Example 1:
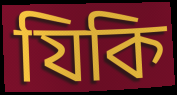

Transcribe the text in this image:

যিকি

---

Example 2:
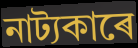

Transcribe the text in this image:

নাট্যকাৰে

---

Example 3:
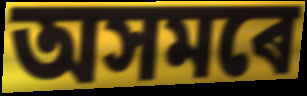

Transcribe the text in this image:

অসমৰে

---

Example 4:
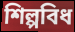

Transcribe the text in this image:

শিল্পবিধ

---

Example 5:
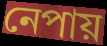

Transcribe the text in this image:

নেপায়